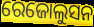
ରେଜୋଲୁସନ